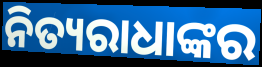
ନିତ୍ୟରାଧାଙ୍କର